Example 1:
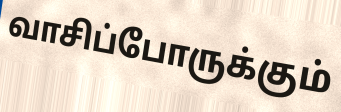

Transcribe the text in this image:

வாசிப்போருக்கும்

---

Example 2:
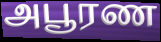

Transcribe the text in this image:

அபூரண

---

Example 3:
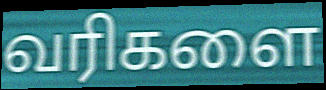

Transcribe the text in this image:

வரிகளை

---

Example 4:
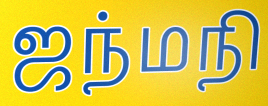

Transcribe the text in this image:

ஜந்மநி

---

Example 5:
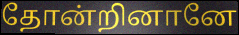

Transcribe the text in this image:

தோன்றினானே